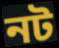
নট